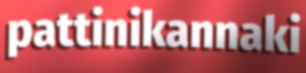
pattinikannaki